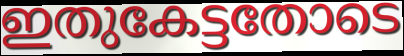
ഇതുകേട്ടതോടെ